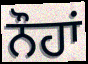
ਨੌਹਾਂ